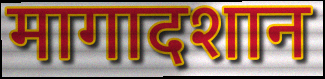
मागादशान